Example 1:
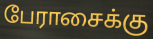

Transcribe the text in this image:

பேராசைக்கு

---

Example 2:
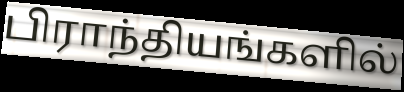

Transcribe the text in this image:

பிராந்தியங்களில்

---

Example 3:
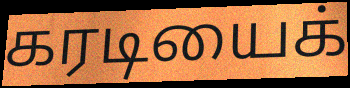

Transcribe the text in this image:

கரடியைக்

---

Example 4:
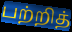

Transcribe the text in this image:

பற்றித்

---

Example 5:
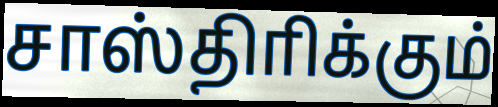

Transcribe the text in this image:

சாஸ்திரிக்கும்